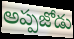
అప్పజోడు